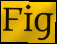
Fig